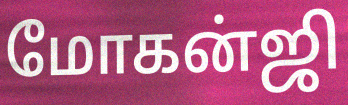
மோகன்ஜி